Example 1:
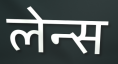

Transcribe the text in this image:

लेन्स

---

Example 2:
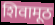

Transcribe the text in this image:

शिवामूठ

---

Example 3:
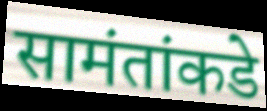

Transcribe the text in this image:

सामंतांकडे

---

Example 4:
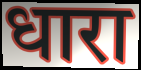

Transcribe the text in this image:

धारा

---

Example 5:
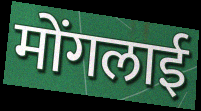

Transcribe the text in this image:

मोंगलाई